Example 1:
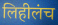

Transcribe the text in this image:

लिहीलंच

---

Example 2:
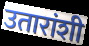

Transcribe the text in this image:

उतारांशी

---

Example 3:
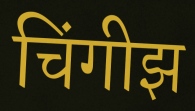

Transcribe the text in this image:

चिंगीझ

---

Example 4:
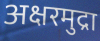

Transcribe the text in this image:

अक्षरमुद्रा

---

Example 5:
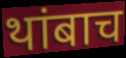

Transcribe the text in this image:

थांबाच